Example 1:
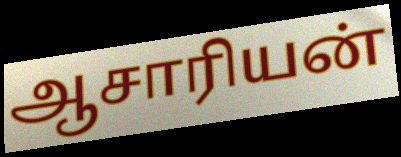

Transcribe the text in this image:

ஆசாரியன்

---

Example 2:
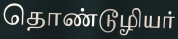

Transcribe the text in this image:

தொண்டூழியர்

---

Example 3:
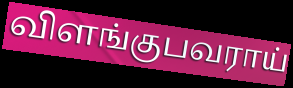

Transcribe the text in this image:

விளங்குபவராய்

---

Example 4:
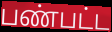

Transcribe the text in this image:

பண்பட்ட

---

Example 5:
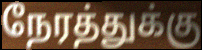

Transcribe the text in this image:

நேரத்துக்கு